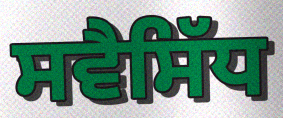
ਸਵੈਸਿੱਧ